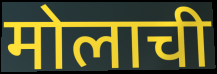
मोलाची